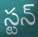
స్టన్